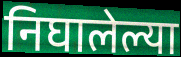
निघालेल्या